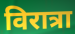
विरात्रा